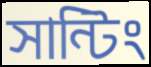
সান্টিং